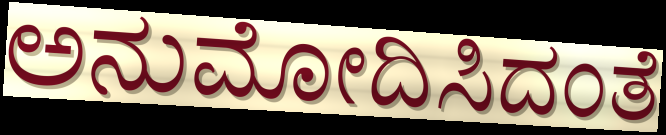
ಅನುಮೋದಿಸಿದಂತೆ